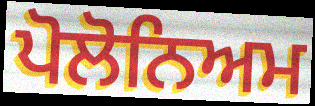
ਪੋਲੋਨਿਅਮ